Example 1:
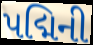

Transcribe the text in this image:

પદ્મિની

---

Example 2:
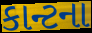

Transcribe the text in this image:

કાન્ટના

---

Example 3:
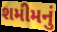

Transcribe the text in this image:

શમીમનું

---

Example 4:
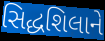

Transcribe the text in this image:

સિદ્ધશિલાને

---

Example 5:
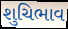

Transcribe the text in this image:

શુચિભાવ